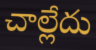
చాల్లేదు